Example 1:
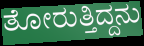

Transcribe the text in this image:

ತೋರುತ್ತಿದ್ದನು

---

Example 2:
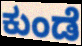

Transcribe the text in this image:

ಕುಂಡೆ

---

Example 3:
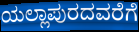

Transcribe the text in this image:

ಯಲ್ಲಾಪುರದವರೆಗೆ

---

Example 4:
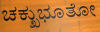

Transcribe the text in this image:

ಚಕ್ಖುಭೂತೋ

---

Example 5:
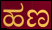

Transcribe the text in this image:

ಹಣ